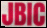
JBIC